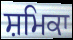
ਸ਼ਮਿਕਾ